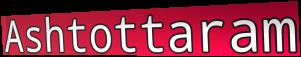
Ashtottaram